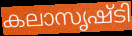
കലാസൃഷ്ടി